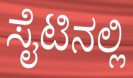
ಸೈಟಿನಲ್ಲಿ